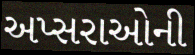
અપ્સરાઓની